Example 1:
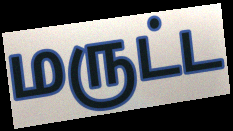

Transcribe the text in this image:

மருட்ட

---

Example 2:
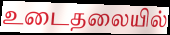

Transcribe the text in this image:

உடைதலையில்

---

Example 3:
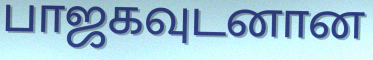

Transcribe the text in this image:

பாஜகவுடனான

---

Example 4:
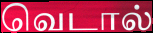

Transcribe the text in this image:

வெடால்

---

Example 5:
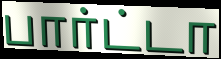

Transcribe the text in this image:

பார்ட்டா